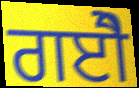
ਗਈੈ